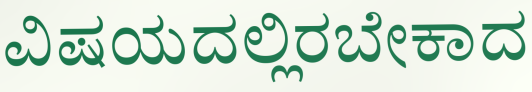
ವಿಷಯದಲ್ಲಿರಬೇಕಾದ